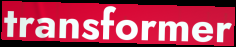
transformer